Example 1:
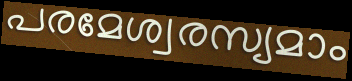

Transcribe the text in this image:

പരമേശ്വരസ്യമാം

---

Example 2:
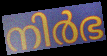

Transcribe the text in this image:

നിർഭ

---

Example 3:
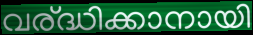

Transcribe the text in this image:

വര്ദ്ധിക്കാനായി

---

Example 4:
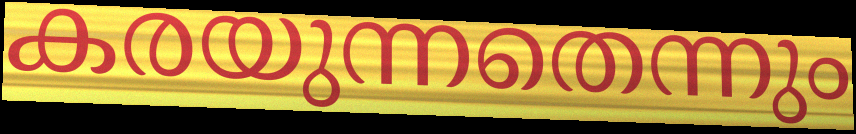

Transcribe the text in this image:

കരയുന്നതെന്നും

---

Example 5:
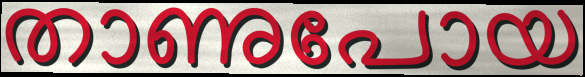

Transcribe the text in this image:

താണുപോയ